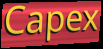
Capex